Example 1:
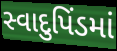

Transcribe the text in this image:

સ્વાદુપિંડમાં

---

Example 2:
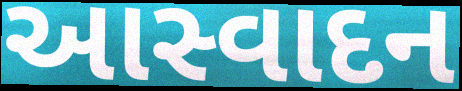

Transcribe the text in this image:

આસ્વાદન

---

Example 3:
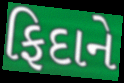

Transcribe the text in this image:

ફિદાને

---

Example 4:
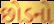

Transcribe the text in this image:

છોડનો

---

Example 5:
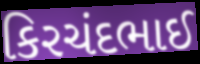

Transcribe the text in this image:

કિરચંદભાઈ